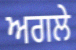
ਅਗਲੇ